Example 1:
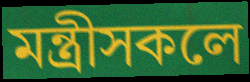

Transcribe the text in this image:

মন্ত্ৰীসকলে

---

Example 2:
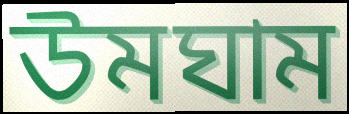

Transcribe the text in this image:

উমঘাম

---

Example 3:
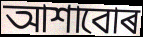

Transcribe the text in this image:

আশাবোৰ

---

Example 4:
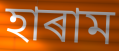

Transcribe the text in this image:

হাৰাম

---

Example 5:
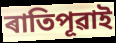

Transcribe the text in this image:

ৰাতিপূৱাই